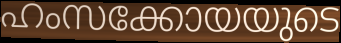
ഹംസക്കോയയുടെ